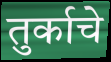
तुर्काचे